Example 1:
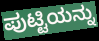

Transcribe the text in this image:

ಪುಟ್ಟಿಯನ್ನು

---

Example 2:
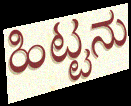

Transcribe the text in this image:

ಹಿಟ್ಟನು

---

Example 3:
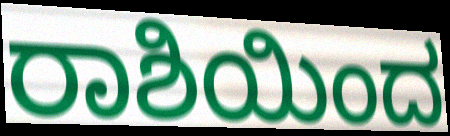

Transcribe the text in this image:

ರಾಶಿಯಿಂದ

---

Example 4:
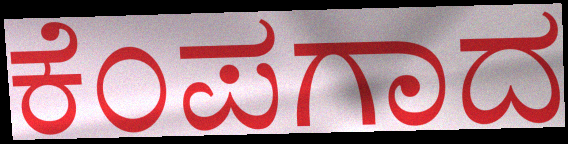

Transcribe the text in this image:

ಕೆಂಪಗಾದ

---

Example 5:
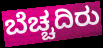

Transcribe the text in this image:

ಬೆಚ್ಚದಿರು